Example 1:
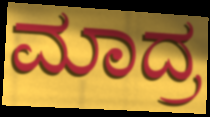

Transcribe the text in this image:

ಮಾದ್ರ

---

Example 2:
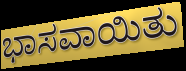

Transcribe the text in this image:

ಭಾಸವಾಯಿತು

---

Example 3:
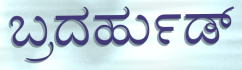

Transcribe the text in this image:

ಬ್ರದರ್ಹುಡ್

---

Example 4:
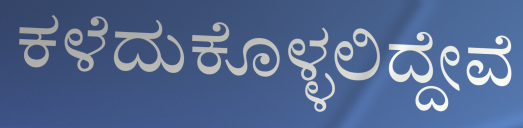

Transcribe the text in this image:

ಕಳೆದುಕೊಳ್ಳಲಿದ್ದೇವೆ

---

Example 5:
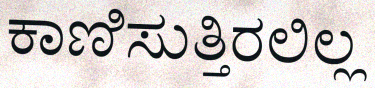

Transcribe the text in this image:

ಕಾಣಿಸುತ್ತಿರಲಿಲ್ಲ